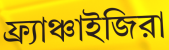
ফ্র্যাঞ্চাইজিরা